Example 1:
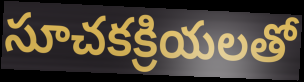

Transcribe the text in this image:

సూచకక్రియలతో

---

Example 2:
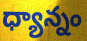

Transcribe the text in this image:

ధ్యాన్నం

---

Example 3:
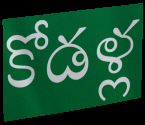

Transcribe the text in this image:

కోడళ్ల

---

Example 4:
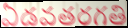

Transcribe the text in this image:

ఏడవతరగతి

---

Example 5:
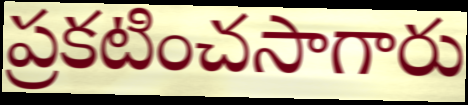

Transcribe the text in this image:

ప్రకటించసాగారు